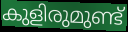
കുളിരുമുണ്ട്